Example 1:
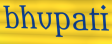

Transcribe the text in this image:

bhupati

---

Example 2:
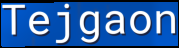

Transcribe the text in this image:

Tejgaon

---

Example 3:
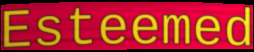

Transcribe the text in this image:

Esteemed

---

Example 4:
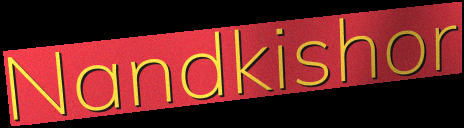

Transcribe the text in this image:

Nandkishor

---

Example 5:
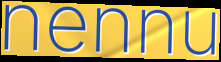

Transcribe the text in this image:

nennu